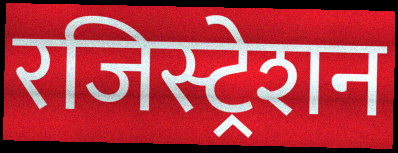
रजिस्ट्रेशन